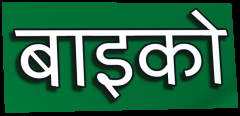
बाइको